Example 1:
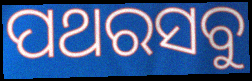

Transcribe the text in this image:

ପଥରସବୁ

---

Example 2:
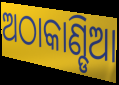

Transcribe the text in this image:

ଅଠାକାଣ୍ଡିଆ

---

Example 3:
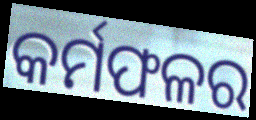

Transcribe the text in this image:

କର୍ମଫଳର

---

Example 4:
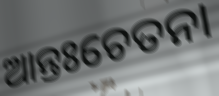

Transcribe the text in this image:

ଆନ୍ତଃଚେତନା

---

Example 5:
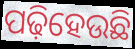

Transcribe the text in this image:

ପଢ଼ିହେଉଛି